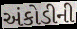
અંકોડીની